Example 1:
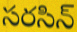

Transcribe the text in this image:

సరసిన్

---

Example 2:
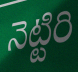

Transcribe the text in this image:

నెట్టిరి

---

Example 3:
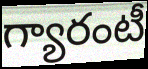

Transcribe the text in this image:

గ్యారంటీ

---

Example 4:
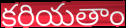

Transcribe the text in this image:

కరియతాం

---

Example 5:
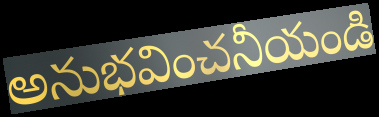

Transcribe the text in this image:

అనుభవించనీయండి